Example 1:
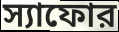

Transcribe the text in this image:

স্যাফোর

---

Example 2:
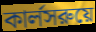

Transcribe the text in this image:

কার্লসরুয়ে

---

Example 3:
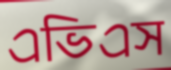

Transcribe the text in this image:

এভিএস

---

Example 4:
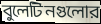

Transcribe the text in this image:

বুলেটিনগুলোর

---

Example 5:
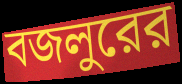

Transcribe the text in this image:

বজলুরের